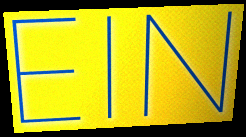
EIN